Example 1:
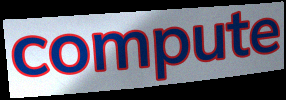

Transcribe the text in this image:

compute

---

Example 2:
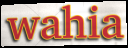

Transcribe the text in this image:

wahia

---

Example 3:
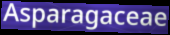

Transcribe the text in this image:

Asparagaceae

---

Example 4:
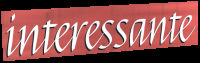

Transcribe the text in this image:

interessante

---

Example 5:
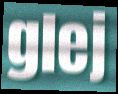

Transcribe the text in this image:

glej